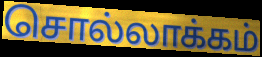
சொல்லாக்கம்